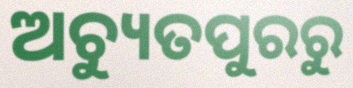
ଅଚ୍ୟୁତପୁରରୁ